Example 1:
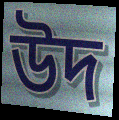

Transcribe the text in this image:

উদ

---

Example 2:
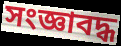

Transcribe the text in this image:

সংজ্ঞাবদ্ধ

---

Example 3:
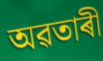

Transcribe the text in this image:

অৱতাৰী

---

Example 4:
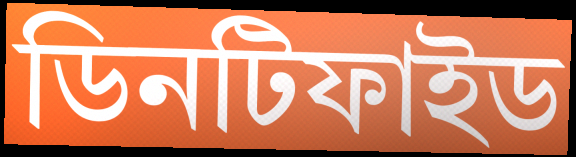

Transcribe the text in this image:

ডিনটিফাইড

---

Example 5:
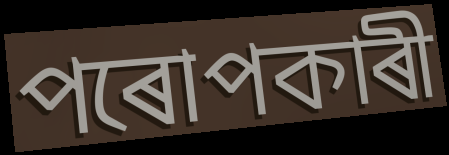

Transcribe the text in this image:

পৰোপকাৰী